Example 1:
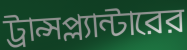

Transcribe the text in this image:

ট্রান্সপ্ল্যান্টারের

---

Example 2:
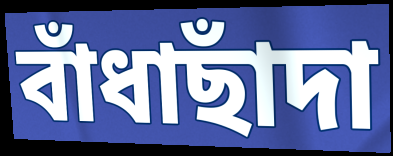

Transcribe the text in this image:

বাঁধাছাঁদা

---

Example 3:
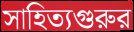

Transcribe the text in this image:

সাহিত্যগুরুর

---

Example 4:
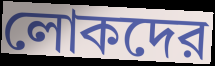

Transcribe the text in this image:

লোকদের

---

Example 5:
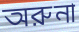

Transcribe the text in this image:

অরুনা